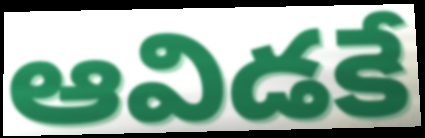
ఆవిడకే